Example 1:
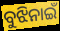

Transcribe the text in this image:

ବୁଝିନାଇଁ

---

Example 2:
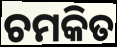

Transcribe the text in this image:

ଚମକିତ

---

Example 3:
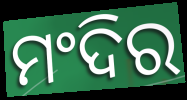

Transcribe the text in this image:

ମଂଦିର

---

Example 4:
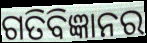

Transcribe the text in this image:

ଗତିବିଜ୍ଞାନର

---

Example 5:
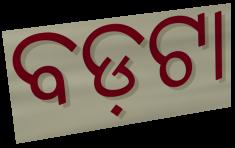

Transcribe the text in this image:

ବଡ଼ଟା